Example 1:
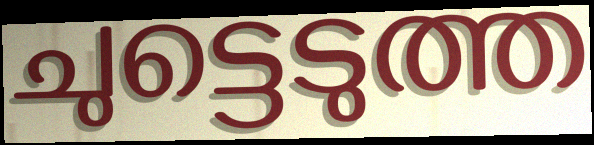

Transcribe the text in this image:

ചുട്ടെടുത്ത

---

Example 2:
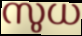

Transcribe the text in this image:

സുധ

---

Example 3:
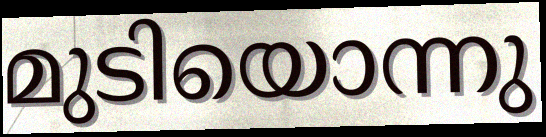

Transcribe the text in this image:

മുടിയൊന്നു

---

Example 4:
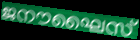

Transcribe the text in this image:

ജനൗഘൈസ്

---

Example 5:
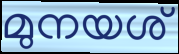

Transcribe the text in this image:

മുനയശ്